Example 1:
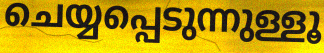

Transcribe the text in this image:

ചെയ്യപ്പെടുന്നുള്ളൂ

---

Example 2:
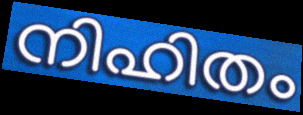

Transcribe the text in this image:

നിഹിതം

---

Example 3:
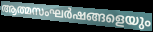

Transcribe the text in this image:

ആത്മസംഘർഷങ്ങളെയും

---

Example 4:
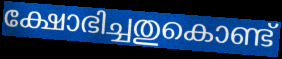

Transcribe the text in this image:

ക്ഷോഭിച്ചതുകൊണ്ട്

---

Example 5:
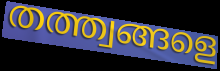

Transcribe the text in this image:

തത്ത്വങ്ങളെ